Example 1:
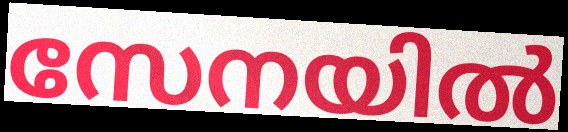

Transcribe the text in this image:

സേനയിൽ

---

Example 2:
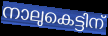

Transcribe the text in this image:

നാലുകെട്ടിന്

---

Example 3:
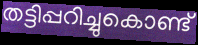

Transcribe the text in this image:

തട്ടിപ്പറിച്ചുകൊണ്ട്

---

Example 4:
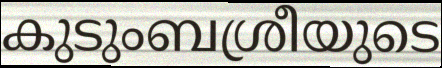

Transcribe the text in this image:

കുടുംബശ്രീയുടെ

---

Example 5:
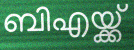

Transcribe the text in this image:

ബിഎയ്ക്ക്